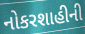
નોકરશાહીની